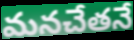
మనచేతనే